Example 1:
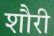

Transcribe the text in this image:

शौरी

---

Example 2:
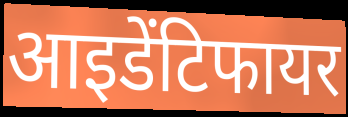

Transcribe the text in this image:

आइडेंटिफायर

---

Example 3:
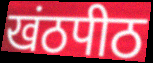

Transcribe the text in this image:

खंठपीठ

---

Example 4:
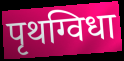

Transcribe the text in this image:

पृथग्विधा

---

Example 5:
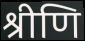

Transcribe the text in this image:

श्रीणि